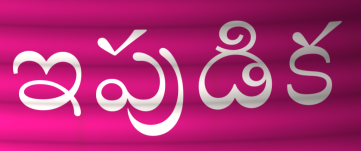
ఇపుడిక